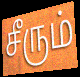
சீரும்